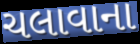
ચલાવાના